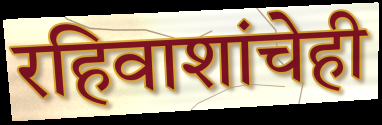
रहिवाशांचेही